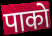
पाको